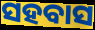
ସହବାସ